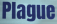
Plague